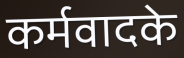
कर्मवादके